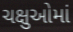
ચક્ષુઓમાં